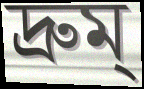
দ্রুম্